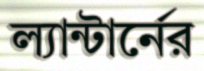
ল্যান্টার্নের